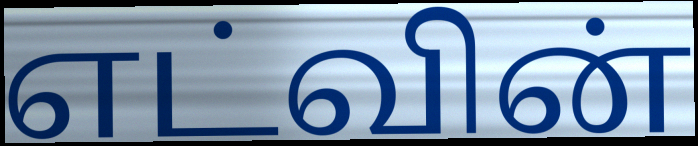
எட்வின்